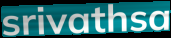
srivathsa